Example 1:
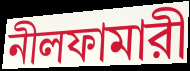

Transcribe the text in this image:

নীলফামারী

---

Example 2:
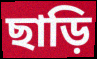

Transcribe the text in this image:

ছাড়ি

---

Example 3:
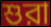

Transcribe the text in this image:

শুরা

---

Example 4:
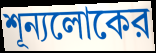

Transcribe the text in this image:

শূন্যলোকের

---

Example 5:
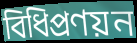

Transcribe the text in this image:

বিধিপ্রণয়ন